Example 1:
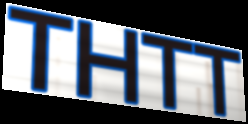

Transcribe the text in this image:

THTT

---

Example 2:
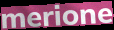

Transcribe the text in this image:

merione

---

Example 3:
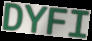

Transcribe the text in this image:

DYFI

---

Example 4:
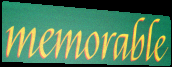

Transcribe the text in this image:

memorable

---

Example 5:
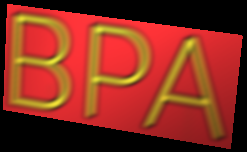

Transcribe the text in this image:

BPA